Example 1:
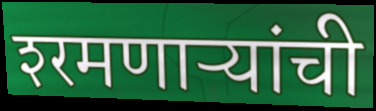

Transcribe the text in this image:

श्रमणाऱ्यांची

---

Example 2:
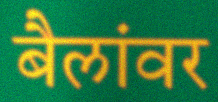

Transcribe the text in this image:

बैलांवर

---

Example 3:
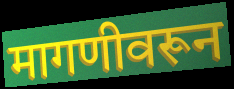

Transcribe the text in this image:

मागणीवरून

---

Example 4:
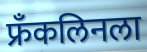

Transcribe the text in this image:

फ्रॅंकलिनला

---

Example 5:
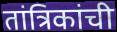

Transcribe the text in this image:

तांत्रिकांची